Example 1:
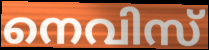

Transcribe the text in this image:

നെവിസ്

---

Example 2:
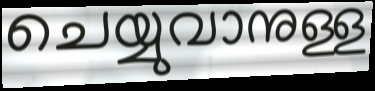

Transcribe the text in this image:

ചെയ്യുവാനുള്ള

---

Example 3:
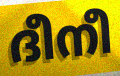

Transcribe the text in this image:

ദീനീ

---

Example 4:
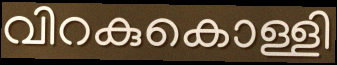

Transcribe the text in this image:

വിറകുകൊള്ളി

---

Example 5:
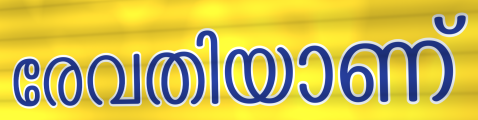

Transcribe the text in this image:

രേവതിയാണ്